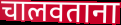
चालवताना